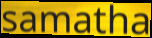
samatha